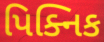
પિક્નિક